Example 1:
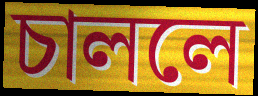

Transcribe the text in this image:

চাললে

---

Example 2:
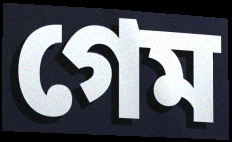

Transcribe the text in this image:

গেম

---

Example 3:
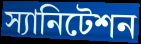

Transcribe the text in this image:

স্যানিটেশন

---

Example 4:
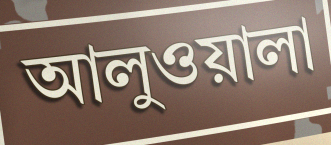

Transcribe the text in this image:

আলুওয়ালা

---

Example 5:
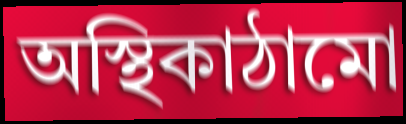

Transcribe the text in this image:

অস্থিকাঠামো